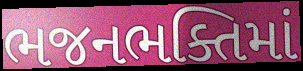
ભજનભક્તિમાં